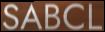
SABCL